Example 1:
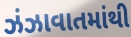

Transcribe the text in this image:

ઝંઝાવાતમાંથી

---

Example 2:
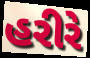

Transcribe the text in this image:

હરીરે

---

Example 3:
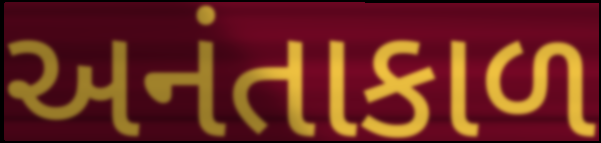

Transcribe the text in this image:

અનંતાકાળ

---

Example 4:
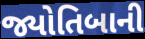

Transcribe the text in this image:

જ્યોતિબાની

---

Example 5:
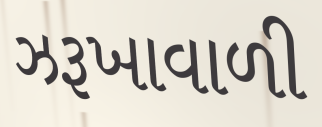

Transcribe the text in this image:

ઝરૂખાવાળી